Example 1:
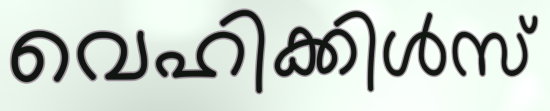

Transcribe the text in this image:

വെഹിക്കിൾസ്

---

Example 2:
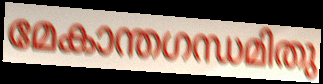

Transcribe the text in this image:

മേകാന്തഗന്ധമിതു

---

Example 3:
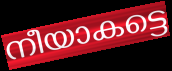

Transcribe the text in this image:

നീയാകട്ടെ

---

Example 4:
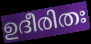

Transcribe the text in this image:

ഉദീരിതഃ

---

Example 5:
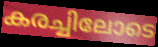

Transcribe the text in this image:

കരച്ചിലോടെ